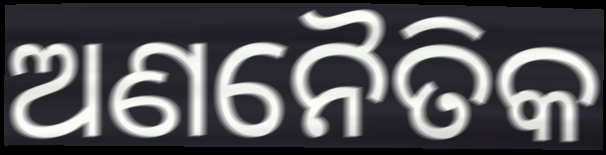
ଅଣନୈତିକ